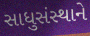
સાધુસંસ્થાને